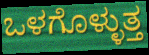
ಒಳಗೊಳ್ಳುತ್ತ